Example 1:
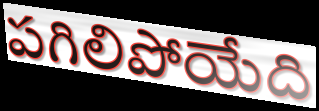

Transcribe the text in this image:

పగిలిపోయేది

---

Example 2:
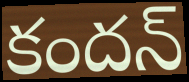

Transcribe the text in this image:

కందన్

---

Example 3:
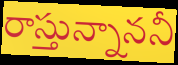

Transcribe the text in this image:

రాస్తున్నాననీ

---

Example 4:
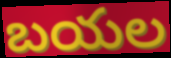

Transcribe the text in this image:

బయల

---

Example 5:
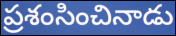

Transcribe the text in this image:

ప్రశంసించినాడు